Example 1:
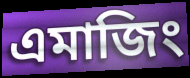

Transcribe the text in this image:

এমাজিং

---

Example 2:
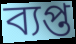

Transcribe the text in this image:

ব্যপ্ত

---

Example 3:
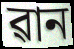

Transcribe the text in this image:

ৱান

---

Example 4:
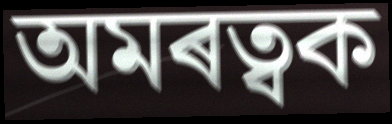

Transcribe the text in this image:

অমৰত্বক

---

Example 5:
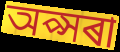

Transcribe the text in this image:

অপ্সৰা